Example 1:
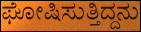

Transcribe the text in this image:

ಘೋಷಿಸುತ್ತಿದ್ದನು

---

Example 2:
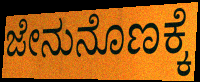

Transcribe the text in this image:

ಜೇನುನೊಣಕ್ಕೆ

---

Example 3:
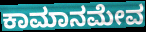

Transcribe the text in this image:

ಕಾಮಾನಮೇವ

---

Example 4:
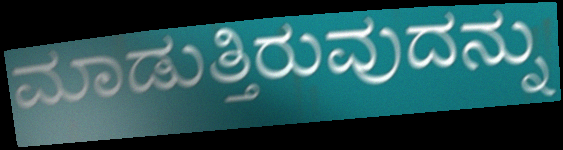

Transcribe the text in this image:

ಮಾಡುತ್ತಿರುವುದನ್ನು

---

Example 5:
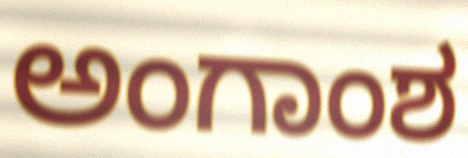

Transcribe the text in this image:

ಅಂಗಾಂಶ